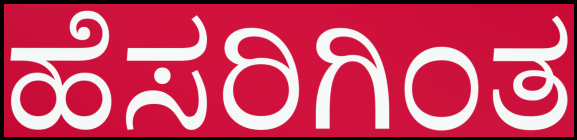
ಹೆಸರಿಗಿಂತ